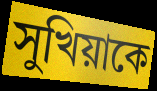
সুখিয়াকে